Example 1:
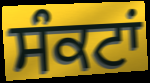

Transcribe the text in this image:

ਸੰਕਟਾਂ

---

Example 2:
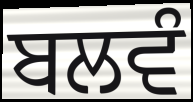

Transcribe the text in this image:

ਬਲਵੰ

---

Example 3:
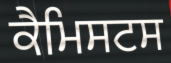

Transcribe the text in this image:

ਕੈਮਿਸਟਸ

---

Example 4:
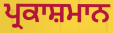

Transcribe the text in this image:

ਪ੍ਰਕਾਸ਼ਮਾਨ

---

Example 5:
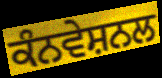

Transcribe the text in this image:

ਕੰਨਵੇਸ਼ਨਲ